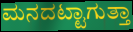
ಮನದಟ್ಟಾಗುತ್ತಾ